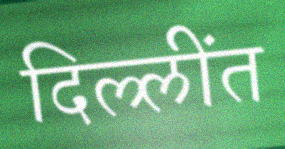
दिल्लींत